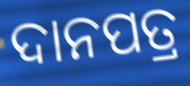
ଦାନପତ୍ର